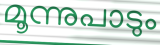
മൂന്നുപാടും